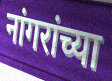
नांगरांच्या